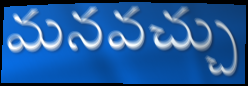
మనవచ్చు